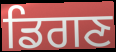
ਡਿਗਣ